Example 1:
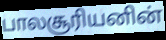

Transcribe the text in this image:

பாலசூரியனின்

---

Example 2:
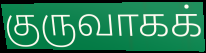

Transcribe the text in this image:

குருவாகக்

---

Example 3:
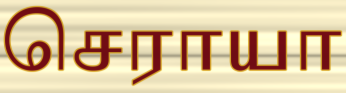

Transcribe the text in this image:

செராயா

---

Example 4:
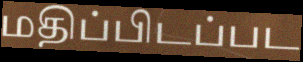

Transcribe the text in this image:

மதிப்பிடப்பட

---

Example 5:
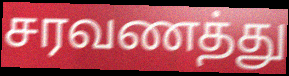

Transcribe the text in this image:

சரவணத்து